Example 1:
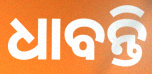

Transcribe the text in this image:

ଧାବନ୍ତି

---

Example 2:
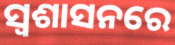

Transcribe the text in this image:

ସ୍ଵଶାସନରେ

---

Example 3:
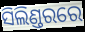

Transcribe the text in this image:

ସିଲିଣ୍ଡରରେ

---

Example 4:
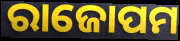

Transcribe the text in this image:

ରାଜୋପମ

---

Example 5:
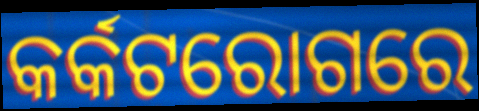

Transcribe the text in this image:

କର୍କଟରୋଗରେ